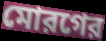
মোরগের